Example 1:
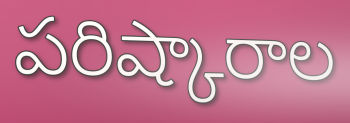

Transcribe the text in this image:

పరిష్కారాల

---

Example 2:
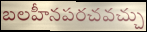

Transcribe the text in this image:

బలహీనపరచవచ్చు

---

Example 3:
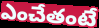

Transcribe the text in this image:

ఎంచేతంటే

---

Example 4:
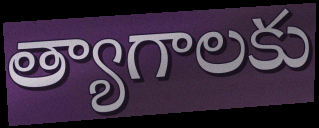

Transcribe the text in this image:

త్యాగాలకు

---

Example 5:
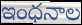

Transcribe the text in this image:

ఇంధనాల